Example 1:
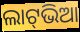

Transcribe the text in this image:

ଲାଟ୍‍ଭିଆ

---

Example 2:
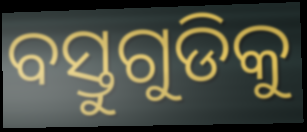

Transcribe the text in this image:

ବସ୍ତୁଗୁଡିକୁ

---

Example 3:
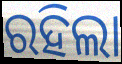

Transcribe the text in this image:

ରହିଲା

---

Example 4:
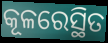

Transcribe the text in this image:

କୂଳରେସ୍ଥିତ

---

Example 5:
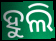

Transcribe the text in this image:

ହୁଲି